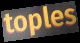
toples